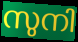
സുനി